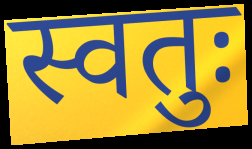
स्वतुः